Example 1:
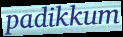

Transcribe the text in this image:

padikkum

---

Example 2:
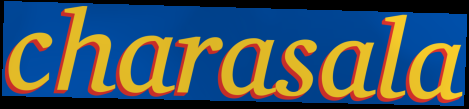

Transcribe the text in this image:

charasala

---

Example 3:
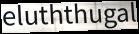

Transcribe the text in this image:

eluththugal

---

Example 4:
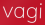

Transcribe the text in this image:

vagi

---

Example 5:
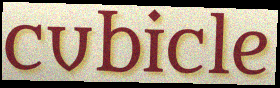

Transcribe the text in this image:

cubicle